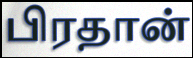
பிரதான்